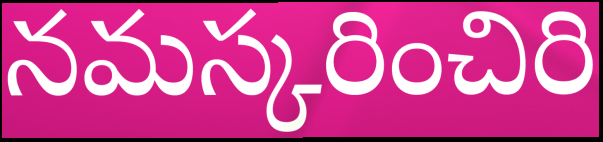
నమస్కరించిరి